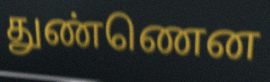
துண்ணென